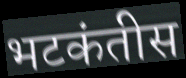
भटकंतीस